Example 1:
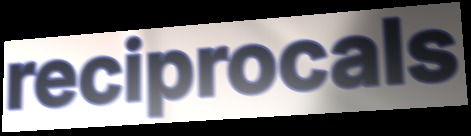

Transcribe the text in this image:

reciprocals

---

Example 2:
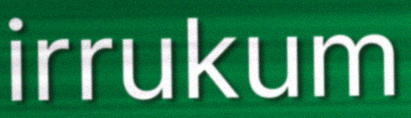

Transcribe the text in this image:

irrukum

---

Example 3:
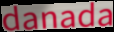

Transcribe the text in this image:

danada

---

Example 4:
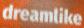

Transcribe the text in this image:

dreamlike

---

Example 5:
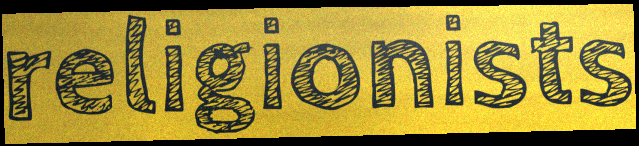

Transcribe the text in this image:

religionists